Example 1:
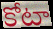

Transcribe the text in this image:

కోటా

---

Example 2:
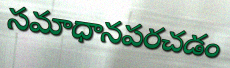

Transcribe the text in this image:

సమాధానపరచడం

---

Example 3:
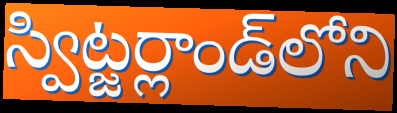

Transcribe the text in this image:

స్విట్జర్లాండ్‌లోని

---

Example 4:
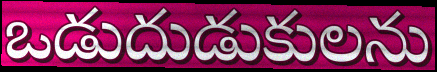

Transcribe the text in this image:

ఒడుదుడుకులను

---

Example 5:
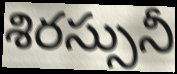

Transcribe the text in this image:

శిరస్సునీ